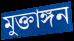
মুক্তাঙ্গন